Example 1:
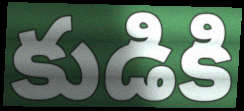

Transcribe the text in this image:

కుడికి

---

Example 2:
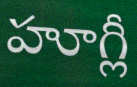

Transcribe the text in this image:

హూగ్లీ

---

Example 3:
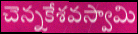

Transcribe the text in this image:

చెన్నకేశవస్వామి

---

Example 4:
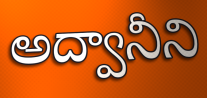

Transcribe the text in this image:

అద్వానీని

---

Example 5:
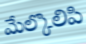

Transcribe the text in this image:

మేల్కొలిపి